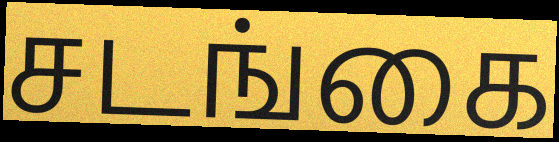
சடங்கை